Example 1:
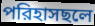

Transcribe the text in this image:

পরিহাসছলে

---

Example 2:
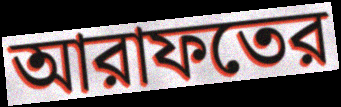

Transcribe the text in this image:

আরাফতের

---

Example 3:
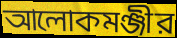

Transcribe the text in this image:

আলোকমঞ্জীর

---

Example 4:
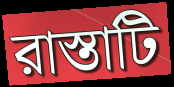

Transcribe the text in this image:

রাস্তাটি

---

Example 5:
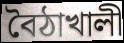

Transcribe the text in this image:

বৈঠাখালী